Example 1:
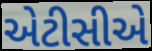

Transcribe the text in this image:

એટીસીએ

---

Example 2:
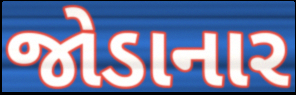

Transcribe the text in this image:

જોડાનાર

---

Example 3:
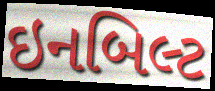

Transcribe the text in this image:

ઇનબિલ્ટ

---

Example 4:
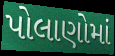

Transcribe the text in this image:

પોલાણોમાં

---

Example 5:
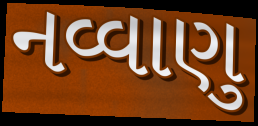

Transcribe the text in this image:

નવ્વાણુ